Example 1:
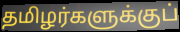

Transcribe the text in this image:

தமிழர்களுக்குப்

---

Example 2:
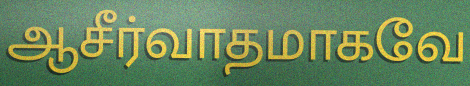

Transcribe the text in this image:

ஆசீர்வாதமாகவே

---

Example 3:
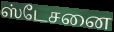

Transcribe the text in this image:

ஸ்டேசனை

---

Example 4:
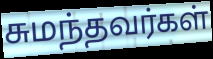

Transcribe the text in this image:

சுமந்தவர்கள்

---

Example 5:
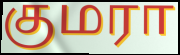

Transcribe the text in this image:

குமரா